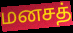
மனசத்